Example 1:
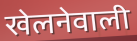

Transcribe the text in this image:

खेलनेवाली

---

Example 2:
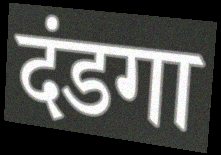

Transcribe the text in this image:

दंडगा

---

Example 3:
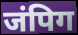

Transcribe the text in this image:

जंपिग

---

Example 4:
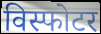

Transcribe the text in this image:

विस्फोटर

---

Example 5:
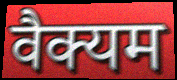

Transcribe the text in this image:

वैक्यम